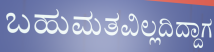
ಬಹುಮತವಿಲ್ಲದಿದ್ದಾಗ